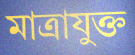
মাত্ৰাযুক্ত